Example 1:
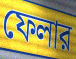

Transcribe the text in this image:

ফেলার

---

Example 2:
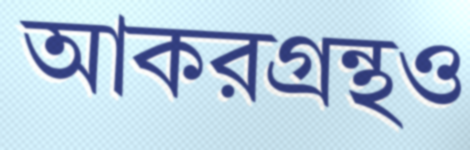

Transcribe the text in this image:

আকরগ্রন্থও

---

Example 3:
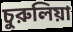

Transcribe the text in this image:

চুরুলিয়া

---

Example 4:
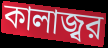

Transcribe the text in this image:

কালাজ্বর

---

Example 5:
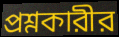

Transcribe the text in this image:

প্রশ্নকারীর